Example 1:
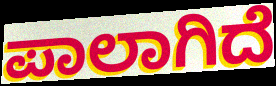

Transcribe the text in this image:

ಪಾಲಾಗಿದೆ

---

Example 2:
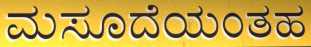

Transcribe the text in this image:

ಮಸೂದೆಯಂತಹ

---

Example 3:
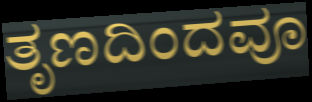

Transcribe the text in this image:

ತೃಣದಿಂದವೂ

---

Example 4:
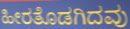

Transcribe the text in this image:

ಹೀರತೊಡಗಿದವು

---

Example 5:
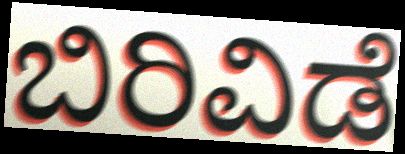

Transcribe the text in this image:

ಬಿರಿವಿಡೆ